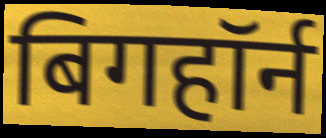
बिगहॉर्न